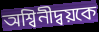
অশ্বিনীদ্বয়কে